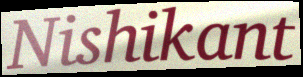
Nishikant